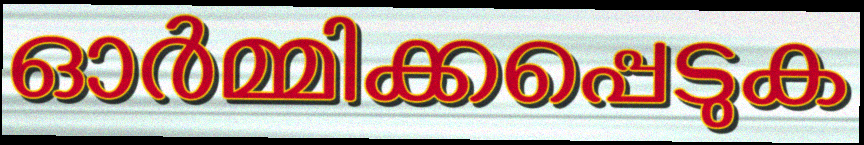
ഓർമ്മിക്കപ്പെടുക